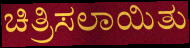
ಚಿತ್ರಿಸಲಾಯಿತು